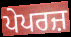
ਪੇਪਰਜ਼